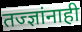
तज्ज्ञांनाही